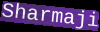
Sharmaji